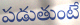
పడుతుంటే